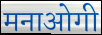
मनाओगी